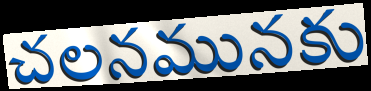
చలనమునకు